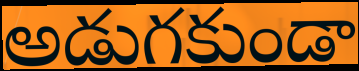
అడుగకుండా